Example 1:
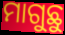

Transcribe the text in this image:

ମାଗୁଛୁ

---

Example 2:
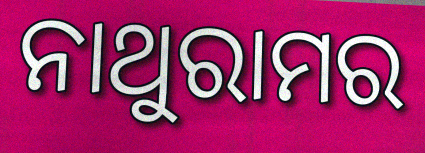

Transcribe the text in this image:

ନାଥୁରାମର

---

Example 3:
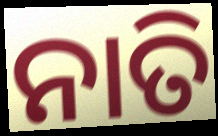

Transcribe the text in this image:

ନାତି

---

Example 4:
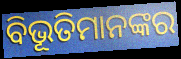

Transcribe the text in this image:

ବିଭୂତିମାନଙ୍କର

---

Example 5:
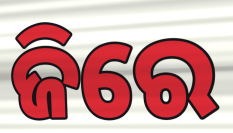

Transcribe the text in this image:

ଜିରେ